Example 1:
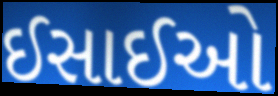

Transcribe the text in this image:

ઈસાઈઓ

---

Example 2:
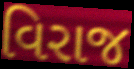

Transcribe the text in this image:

વિરાજ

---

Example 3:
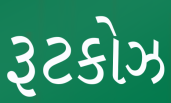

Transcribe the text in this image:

રૂટકોઝ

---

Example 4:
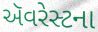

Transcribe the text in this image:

ઍૅવરેસ્ટના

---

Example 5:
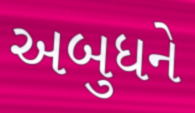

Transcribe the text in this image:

અબુધને